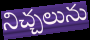
నిచ్చలును